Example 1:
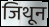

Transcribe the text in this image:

जिथून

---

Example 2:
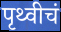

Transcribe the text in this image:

पृथ्वीचं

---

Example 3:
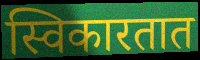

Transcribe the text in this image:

स्विकारतात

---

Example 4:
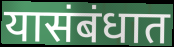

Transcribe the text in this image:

यासंबंधात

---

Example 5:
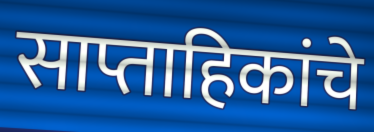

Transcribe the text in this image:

साप्ताहिकांचे